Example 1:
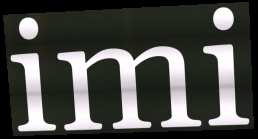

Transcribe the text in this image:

imi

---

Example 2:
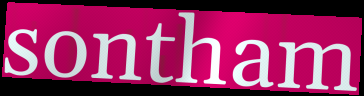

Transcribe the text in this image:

sontham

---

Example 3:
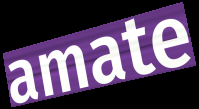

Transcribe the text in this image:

amate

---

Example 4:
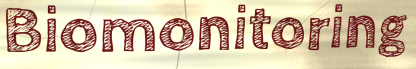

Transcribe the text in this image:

Biomonitoring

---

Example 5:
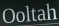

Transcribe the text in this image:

Ooltah